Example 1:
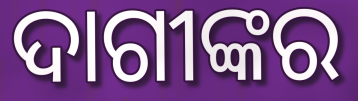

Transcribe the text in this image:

ଦାଗୀଙ୍କର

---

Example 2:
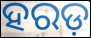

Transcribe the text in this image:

ହରଡ଼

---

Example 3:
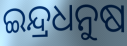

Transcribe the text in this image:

ଇନ୍ଦ୍ରଧନୁଷ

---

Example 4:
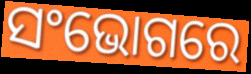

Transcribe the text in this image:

ସଂଭୋଗରେ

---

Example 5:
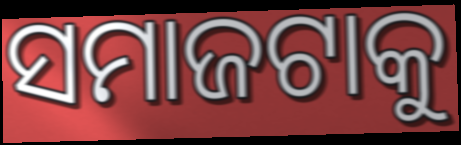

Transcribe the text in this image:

ସମାଜଟାକୁ